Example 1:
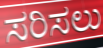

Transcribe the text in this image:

ಸರಿಸಲು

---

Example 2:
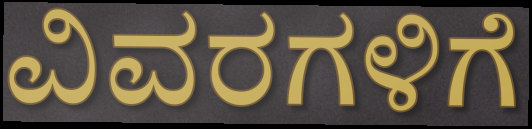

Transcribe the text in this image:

ವಿವರಗಳಿಗೆ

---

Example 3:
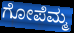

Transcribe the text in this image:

ಗೋಪೆಮ್ಮ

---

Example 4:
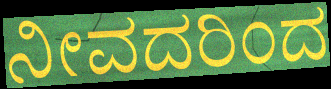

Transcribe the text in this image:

ನೀವದರಿಂದ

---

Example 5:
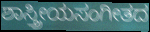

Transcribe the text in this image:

ಶಾಸ್ತ್ರೀಯಸಂಗೀತದ